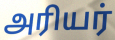
அரியர்